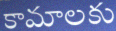
కామాలకు